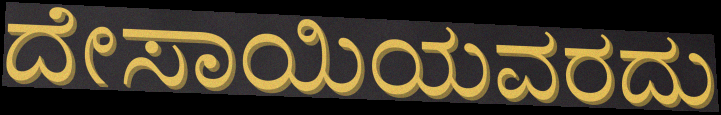
ದೇಸಾಯಿಯವರದು